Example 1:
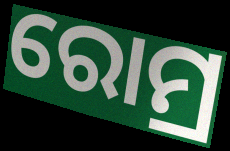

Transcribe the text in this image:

ରୋମ୍ର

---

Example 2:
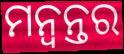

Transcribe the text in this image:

ମନ୍ୱନ୍ତର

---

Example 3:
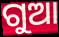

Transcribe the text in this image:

ଗୁଆ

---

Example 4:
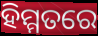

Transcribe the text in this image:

ହିମ୍ମତରେ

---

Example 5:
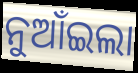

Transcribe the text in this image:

ନୁଆଁଇଲା